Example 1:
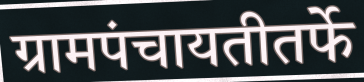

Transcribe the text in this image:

ग्रामपंचायतीतर्फे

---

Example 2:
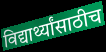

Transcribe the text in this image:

विद्यार्थ्यांसाठीच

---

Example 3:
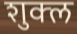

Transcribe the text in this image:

शुक्‍ल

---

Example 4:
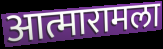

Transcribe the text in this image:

आत्मारामला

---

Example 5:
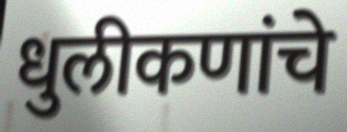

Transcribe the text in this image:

धुलीकणांचे